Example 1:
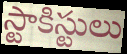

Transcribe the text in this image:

స్టాకిస్టులు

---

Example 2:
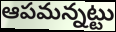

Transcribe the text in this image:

ఆపమన్నట్టు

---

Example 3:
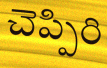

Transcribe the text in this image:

చెప్పిరి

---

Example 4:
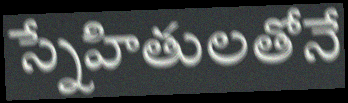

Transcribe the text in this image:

స్నేహితులతోనే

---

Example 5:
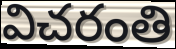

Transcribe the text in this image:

విచరంతి